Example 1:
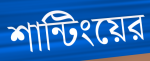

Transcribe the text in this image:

শান্টিংয়ের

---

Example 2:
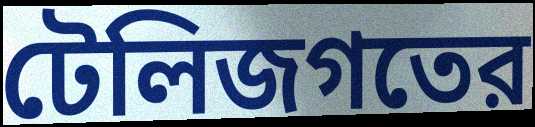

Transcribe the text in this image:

টেলিজগতের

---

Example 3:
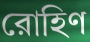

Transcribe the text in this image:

রোহিণ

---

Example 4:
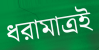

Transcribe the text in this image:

ধরামাত্রই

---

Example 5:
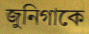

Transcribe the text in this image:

জুনিগাকে